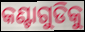
କଣ୍ଟାଗୁଡିକୁ